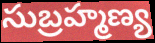
సుబ్రహ్మణ్య